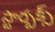
స్టార్బక్స్